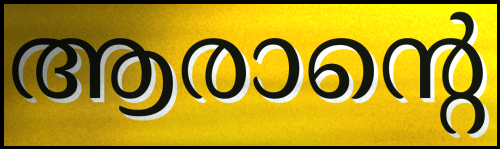
ആരാന്റെ